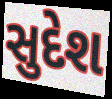
સુદેશ